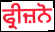
ਫ੍ਰੀਜ਼ਨੋ